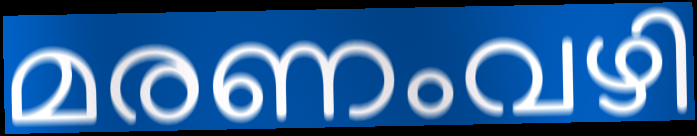
മരണംവഴി